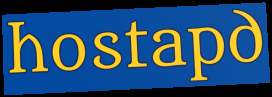
hostapd